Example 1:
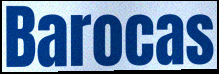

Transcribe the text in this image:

Barocas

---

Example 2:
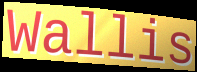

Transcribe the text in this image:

Wallis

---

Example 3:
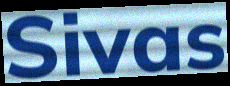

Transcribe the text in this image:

Sivas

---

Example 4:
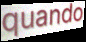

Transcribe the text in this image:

quando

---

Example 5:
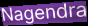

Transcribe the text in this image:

Nagendra